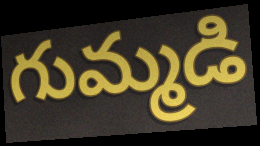
గుమ్మడి